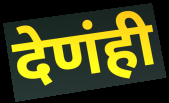
देणंही